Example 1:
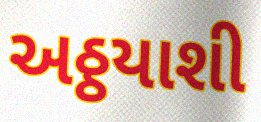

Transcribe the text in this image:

અઠ્ઠયાશી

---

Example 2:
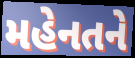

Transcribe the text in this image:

મહેનતને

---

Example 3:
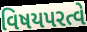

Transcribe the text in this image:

વિષયપરત્વે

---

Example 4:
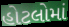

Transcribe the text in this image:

હોટલોમાં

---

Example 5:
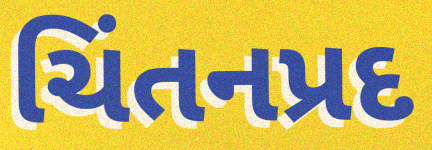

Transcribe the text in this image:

ચિંતનપ્રદ